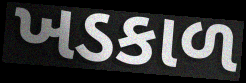
ખડકાળ